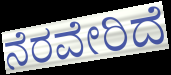
ನೆರವೇರಿದೆ